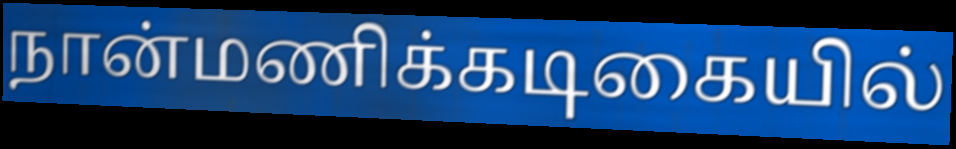
நான்மணிக்கடிகையில்